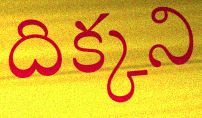
దిక్కని